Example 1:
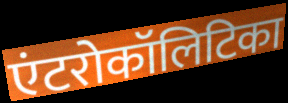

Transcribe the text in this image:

एंटरोकॉलिटिका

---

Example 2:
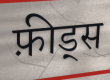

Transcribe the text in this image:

फ़ीड्स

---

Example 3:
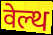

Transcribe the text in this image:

वेल्‍थ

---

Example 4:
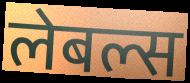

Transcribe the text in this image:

लेबल्स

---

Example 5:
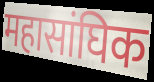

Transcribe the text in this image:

महासांघिक